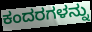
ಕಂದರಗಳನ್ನು